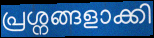
പ്രശ്നങ്ങളാക്കി